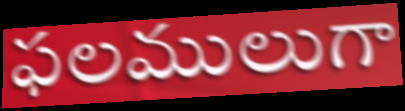
ఫలములుగా